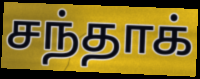
சந்தாக்